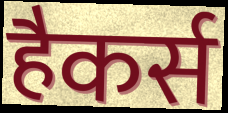
हैकर्स